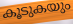
കൂടുകയും